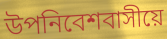
উপনিবেশবাসীয়ে